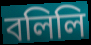
বলিলি